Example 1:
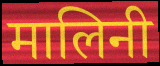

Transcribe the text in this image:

मालिनी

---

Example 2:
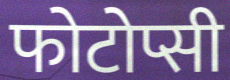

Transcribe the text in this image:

फोटोप्सी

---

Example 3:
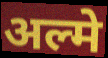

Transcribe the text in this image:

अल्मे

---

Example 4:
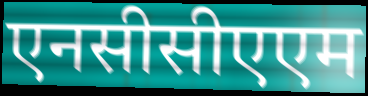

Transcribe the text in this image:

एनसीसीएएम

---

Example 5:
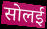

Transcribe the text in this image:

सोलई